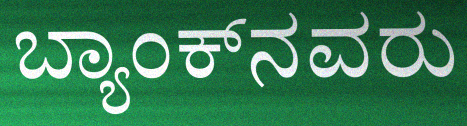
ಬ್ಯಾಂಕ್‌ನವರು